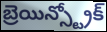
బ్రెయిన్స్ట్రోక్